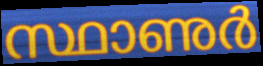
സ്ഥാണുർ